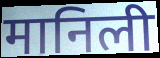
मानिली